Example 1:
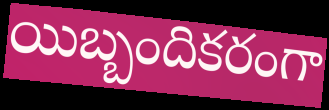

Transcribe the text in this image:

యిబ్బందికరంగా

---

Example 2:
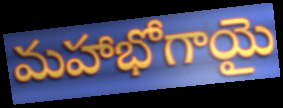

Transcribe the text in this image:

మహాభోగాయై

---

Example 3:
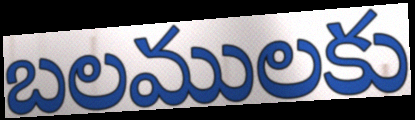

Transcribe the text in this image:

బలములకు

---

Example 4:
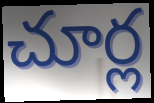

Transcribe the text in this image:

చూర్ల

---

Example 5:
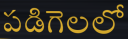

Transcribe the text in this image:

పడిగెలలో